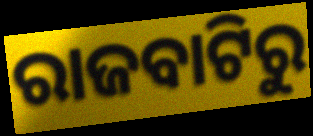
ରାଜବାଟିରୁ